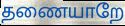
தணையாறே